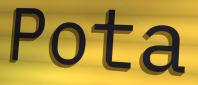
Pota